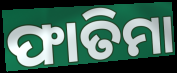
ଫାତିମା